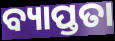
ବ୍ୟାପ୍ତତା